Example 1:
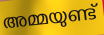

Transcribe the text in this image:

അമ്മയുണ്ട്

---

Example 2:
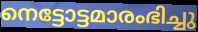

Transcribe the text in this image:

നെട്ടോട്ടമാരംഭിച്ചു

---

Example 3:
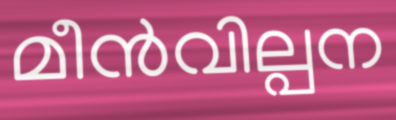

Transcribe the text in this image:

മീൻവില്പന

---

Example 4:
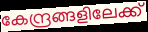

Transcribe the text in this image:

കേന്ദ്രങ്ങളിലേക്ക്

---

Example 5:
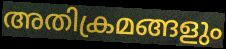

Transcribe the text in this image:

അതിക്രമങ്ങളും